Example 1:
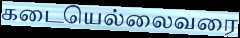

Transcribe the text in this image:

கடையெல்லைவரை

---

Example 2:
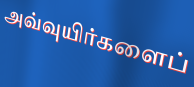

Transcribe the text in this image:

அவ்வுயிர்களைப்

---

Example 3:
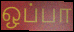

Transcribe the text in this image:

ஒப்பா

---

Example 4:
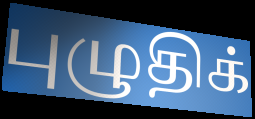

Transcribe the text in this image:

புழுதிக்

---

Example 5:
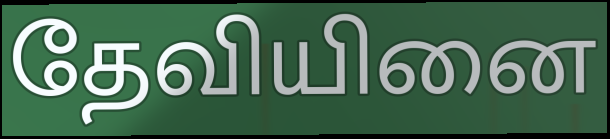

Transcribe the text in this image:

தேவியினை